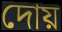
দোয়